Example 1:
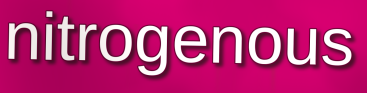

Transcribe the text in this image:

nitrogenous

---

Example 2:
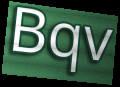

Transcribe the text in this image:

Bqv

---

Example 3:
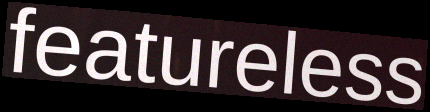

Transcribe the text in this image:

featureless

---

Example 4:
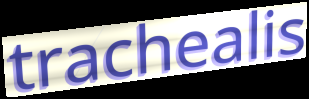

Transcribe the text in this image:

trachealis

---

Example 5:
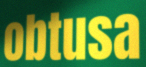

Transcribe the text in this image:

obtusa